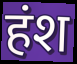
हंश